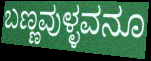
ಬಣ್ಣವುಳ್ಳವನೂ